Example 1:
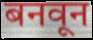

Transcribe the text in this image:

बनवून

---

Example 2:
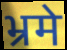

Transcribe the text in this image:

भ्रमे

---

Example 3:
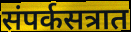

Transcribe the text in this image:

संपर्कसत्रात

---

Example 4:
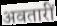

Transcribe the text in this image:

अवतारीं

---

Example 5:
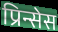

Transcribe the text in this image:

प्रिन्सेस